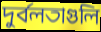
দুর্বলতাগুলি